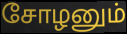
சோழனும்